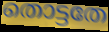
തൊട്ടതേ